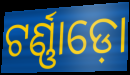
ଟର୍ଣ୍ଣାଡ଼ୋ